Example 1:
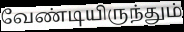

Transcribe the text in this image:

வேண்டியிருந்தும்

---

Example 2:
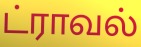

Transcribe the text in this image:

ட்ராவல்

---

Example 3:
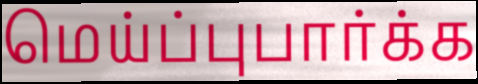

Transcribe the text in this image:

மெய்ப்புபார்க்க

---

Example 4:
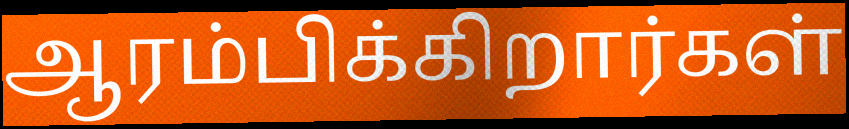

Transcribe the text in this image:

ஆரம்பிக்கிறார்கள்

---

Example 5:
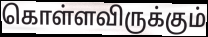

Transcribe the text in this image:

கொள்ளவிருக்கும்